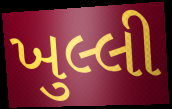
ખુલ્લી